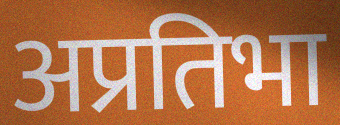
अप्रतिभा